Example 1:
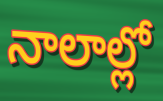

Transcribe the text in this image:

నాలాల్లో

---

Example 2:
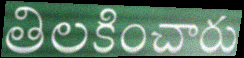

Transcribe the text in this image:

తిలకించారు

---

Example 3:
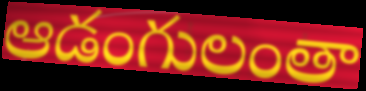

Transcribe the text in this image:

ఆడంగులంతా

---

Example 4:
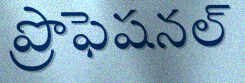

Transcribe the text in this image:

ప్రొఫెషనల్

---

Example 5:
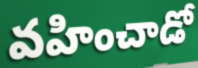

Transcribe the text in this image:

వహించాడో